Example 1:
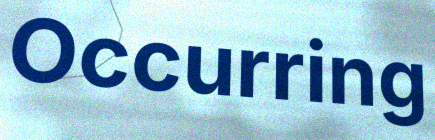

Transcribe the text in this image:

Occurring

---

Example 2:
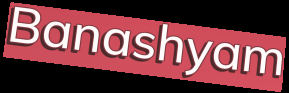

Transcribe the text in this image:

Banashyam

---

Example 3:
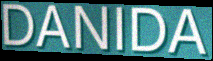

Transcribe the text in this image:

DANIDA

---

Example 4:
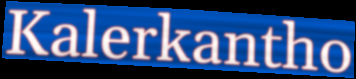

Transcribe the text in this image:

Kalerkantho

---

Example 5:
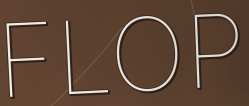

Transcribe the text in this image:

FLOP